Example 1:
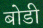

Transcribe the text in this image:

बोडी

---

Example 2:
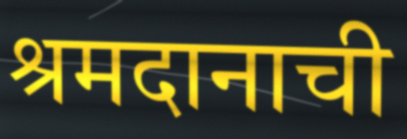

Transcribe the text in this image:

श्रमदानाची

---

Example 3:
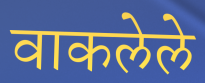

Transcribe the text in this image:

वाकलेले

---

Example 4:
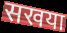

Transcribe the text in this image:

सखया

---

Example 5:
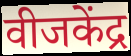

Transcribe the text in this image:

वीजकेंद्र